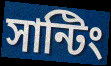
সান্টিং